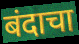
बंदाचा